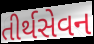
તીર્થસેવન